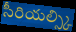
సీరియల్స్కి